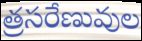
త్రసరేణువుల